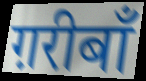
ग़रीबाँ